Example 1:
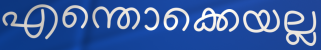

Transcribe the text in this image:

എന്തൊക്കെയല്ല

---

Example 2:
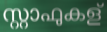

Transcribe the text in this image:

സ്റ്റാഫുകള്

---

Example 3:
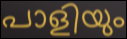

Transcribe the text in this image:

പാളിയും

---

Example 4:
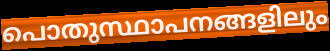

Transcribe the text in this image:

പൊതുസ്ഥാപനങ്ങളിലും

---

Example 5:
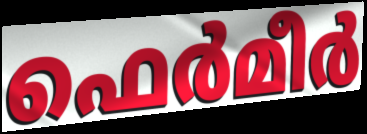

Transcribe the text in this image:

ഫെർമീർ